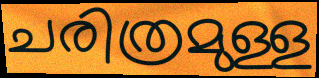
ചരിത്രമുള്ള